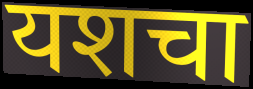
यशचा